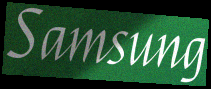
Samsung